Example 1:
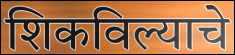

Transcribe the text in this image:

शिकविल्याचे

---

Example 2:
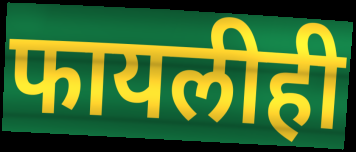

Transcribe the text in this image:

फायलीही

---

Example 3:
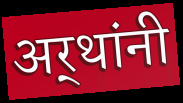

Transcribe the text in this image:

अर्थांनी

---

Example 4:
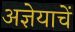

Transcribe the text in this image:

अज्ञेयाचें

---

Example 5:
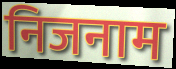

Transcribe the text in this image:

निजनाम